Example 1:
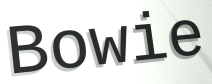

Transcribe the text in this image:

Bowie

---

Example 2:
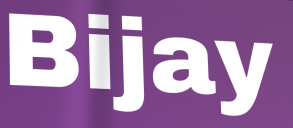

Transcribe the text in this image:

Bijay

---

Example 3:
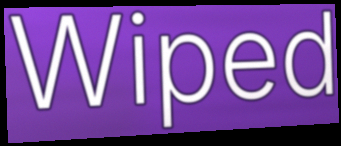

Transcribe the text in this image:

Wiped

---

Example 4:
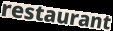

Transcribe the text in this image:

restaurant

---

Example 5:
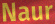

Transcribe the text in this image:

Naur